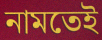
নামতেই